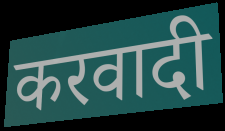
करवादी